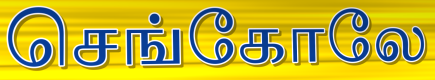
செங்கோலே